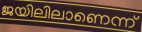
ജയിലിലാണെന്ന്